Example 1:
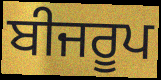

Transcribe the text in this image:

ਬੀਜਰੂਪ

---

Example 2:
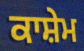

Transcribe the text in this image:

ਕਾਸ਼ੇਮ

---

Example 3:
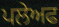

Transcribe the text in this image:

ਪਲੇਅਫ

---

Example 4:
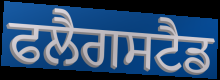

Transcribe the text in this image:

ਫਲੈਗਸਟੈਡ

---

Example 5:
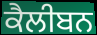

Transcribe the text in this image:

ਕੈਲੀਬਨ